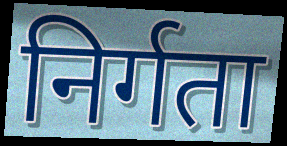
निर्गता